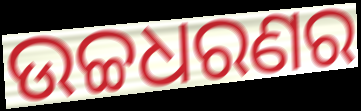
ଉଚ୍ଚଧରଣର